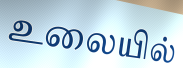
உலையில்